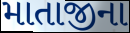
માતાજીના